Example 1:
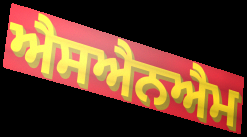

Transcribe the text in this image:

ਐਸਐਨਐਮ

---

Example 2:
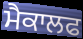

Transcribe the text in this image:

ਮੈਕਾਲਫ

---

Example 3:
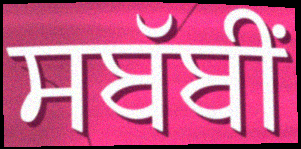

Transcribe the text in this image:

ਸਬੱਬੀਂ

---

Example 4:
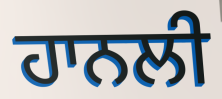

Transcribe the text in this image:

ਹਾਨਲੀ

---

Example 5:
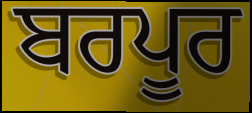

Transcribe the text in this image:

ਬਰਪੂਰ